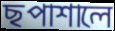
ছপাশালে